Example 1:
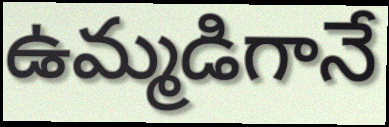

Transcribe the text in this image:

ఉమ్మడిగానే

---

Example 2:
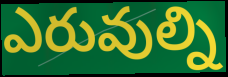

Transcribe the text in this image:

ఎరువుల్ని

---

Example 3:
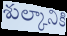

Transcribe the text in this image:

శుల్కానికి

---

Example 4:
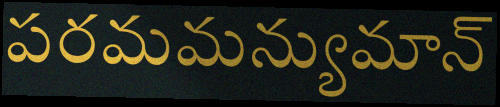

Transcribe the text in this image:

పరమమన్యుమాన్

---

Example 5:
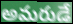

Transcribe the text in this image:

అమరుడే